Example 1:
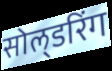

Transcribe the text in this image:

सोल्डरिंग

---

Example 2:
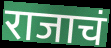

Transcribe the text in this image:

राजाचं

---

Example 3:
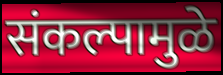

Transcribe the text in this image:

संकल्पामुळे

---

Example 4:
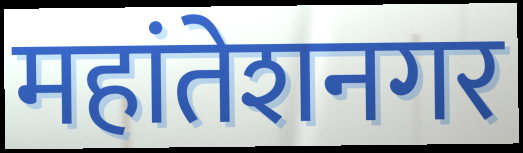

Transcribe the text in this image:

महांतेशनगर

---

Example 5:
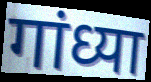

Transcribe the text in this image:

गांध्या